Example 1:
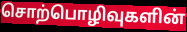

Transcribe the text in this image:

சொற்பொழிவுகளின்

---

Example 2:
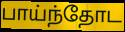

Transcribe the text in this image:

பாய்ந்தோட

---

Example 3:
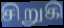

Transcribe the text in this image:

சிறுகி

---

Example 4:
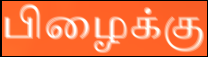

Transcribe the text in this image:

பிழைக்கு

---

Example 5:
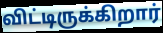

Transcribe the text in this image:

விட்டிருக்கிறார்